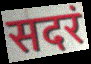
सदरं